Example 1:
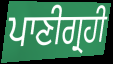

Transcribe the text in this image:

ਪਾਣੀਗ੍ਰਹੀ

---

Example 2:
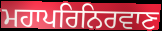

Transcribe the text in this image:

ਮਹਾਪਰਿਨਿਰਵਾਣ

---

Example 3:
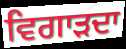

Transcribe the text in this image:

ਵਿਗਾੜਦਾ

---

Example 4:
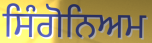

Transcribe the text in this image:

ਸਿੰਗੋਨਿਅਮ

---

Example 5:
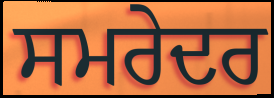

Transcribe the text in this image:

ਸਮਰੇਦਰ